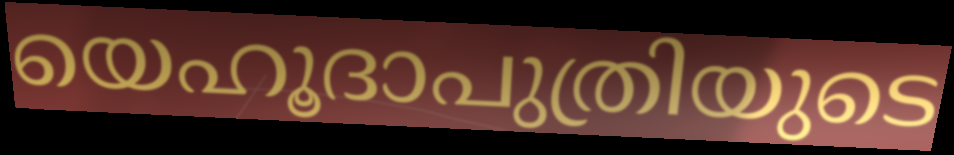
യെഹൂദാപുത്രിയുടെ